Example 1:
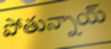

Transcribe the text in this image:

పోతున్నాయ్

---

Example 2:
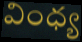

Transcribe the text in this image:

వింధ్య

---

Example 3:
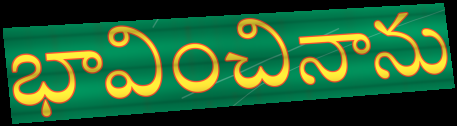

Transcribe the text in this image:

భావించినాను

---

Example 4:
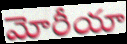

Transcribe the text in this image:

మోరీయా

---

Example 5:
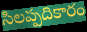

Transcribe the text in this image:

సిలప్పదికారం